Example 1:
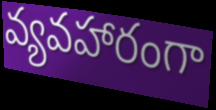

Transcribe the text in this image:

వ్యవహారంగా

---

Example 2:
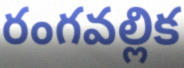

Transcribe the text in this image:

రంగవల్లిక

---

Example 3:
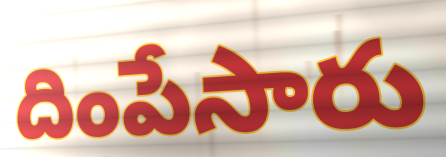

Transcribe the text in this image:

దింపేసారు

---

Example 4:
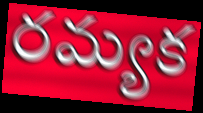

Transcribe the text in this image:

రమ్యక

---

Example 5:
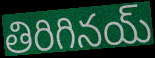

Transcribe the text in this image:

తిరిగినయ్